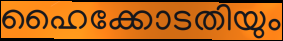
ഹൈക്കോടതിയും